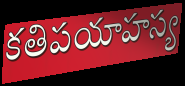
కతిపయాహస్య